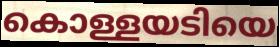
കൊള്ളയടിയെ